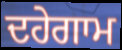
ਦਹੇਗਾਮ